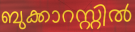
ബുക്കാറസ്റ്റിൽ